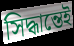
সিদ্ধান্তেই